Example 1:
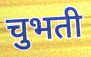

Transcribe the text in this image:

चुभती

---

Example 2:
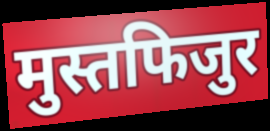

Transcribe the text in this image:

मुस्तफिजुर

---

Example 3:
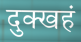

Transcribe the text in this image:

दुक्खहं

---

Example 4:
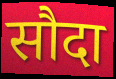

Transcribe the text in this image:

सौदा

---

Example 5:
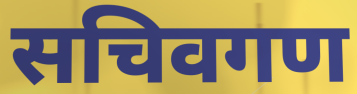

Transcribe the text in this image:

सचिवगण